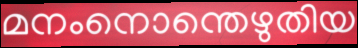
മനംനൊന്തെഴുതിയ